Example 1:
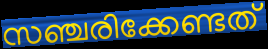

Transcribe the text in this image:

സഞ്ചരിക്കേണ്ടത്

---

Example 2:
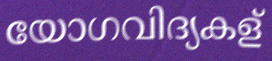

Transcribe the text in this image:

യോഗവിദ്യകള്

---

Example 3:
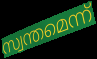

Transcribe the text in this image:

സ്വന്തമെന്ന്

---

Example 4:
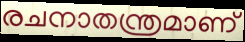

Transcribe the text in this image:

രചനാതന്ത്രമാണ്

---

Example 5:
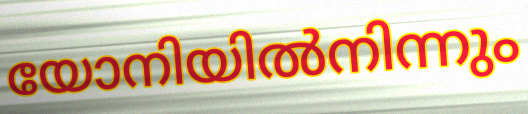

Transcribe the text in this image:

യോനിയിൽനിന്നും